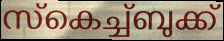
സ്‌കെച്ച്ബുക്ക്